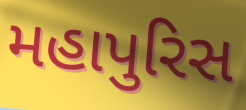
મહાપુરિસ